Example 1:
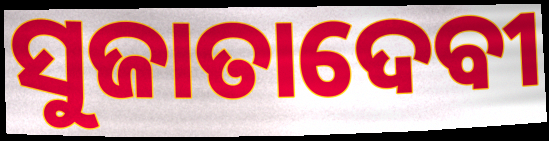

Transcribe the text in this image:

ସୁଜାତାଦେବୀ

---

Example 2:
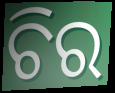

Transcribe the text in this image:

ଚିର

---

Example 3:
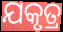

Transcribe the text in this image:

ଯକୃତ୍ର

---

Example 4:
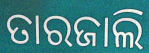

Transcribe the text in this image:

ତାରଜାଲି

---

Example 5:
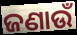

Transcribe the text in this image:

ଜଣାଉଁ